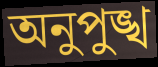
অনুপুঙ্খ